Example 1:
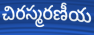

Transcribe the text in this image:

చిరస్మరణీయ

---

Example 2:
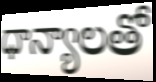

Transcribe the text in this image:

ధాన్యాలతో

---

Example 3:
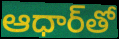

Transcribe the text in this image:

ఆధార్‌తో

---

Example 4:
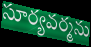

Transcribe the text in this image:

సూర్యవర్మను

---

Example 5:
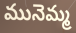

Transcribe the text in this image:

మునెమ్మ